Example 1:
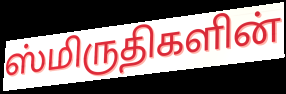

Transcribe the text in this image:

ஸ்மிருதிகளின்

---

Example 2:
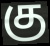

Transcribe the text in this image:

கு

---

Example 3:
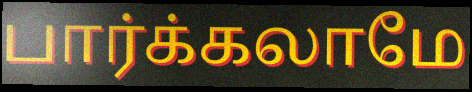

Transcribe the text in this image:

பார்க்கலாமே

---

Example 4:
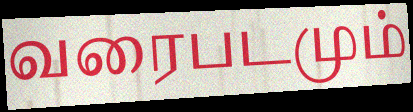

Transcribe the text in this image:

வரைபடமும்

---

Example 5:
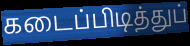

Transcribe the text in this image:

கடைப்பிடித்துப்